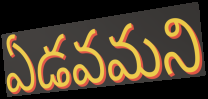
ఏడవమని